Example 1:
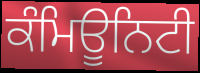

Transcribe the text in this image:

ਕੰਮਿਊਨਿਟੀ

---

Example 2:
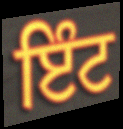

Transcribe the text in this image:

ਇੰਟ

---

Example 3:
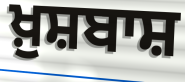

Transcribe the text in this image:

ਖ਼ੁਸ਼ਬਾਸ਼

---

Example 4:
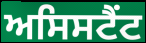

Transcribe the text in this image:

ਅਸਿਸਟੈਂਟ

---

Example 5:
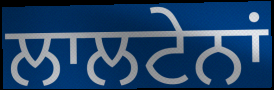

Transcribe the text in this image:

ਲਾਲਟੇਨਾਂ